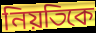
নিয়তিকে